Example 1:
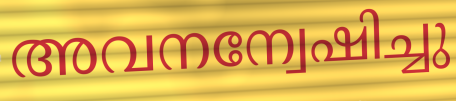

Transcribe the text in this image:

അവനന്വേഷിച്ചു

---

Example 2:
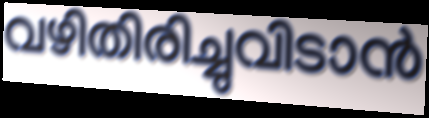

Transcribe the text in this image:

വഴിതിരിച്ചുവിടാൻ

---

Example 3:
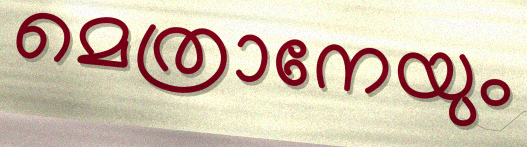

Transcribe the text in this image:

മെത്രാനേയും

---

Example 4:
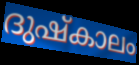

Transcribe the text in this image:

ദുഷ്കാലം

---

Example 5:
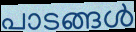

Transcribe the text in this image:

പാടങ്ങൾ